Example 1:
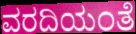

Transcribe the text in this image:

ವರದಿಯಂತೆ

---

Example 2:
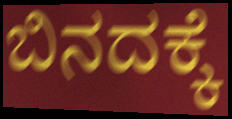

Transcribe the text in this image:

ಬಿನದಕ್ಕೆ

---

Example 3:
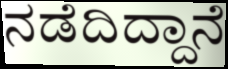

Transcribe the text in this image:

ನಡೆದಿದ್ದಾನೆ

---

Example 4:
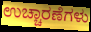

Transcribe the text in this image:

ಉಚ್ಚಾರಣೆಗಳು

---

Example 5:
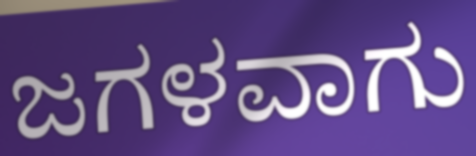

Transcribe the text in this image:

ಜಗಳವಾಗು